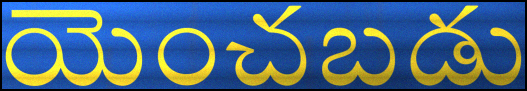
యెంచబడు